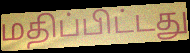
மதிப்பிட்டது